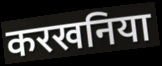
करखनिया